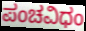
ಪಂಚವಿಧಂ